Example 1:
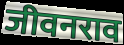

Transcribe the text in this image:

जीवनराव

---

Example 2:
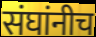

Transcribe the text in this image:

संघांनीच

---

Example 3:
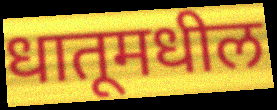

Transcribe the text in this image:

धातूमधील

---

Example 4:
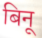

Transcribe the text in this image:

बिनू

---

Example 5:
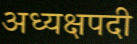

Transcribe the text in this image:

अध्यक्षपदी